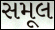
સમૂલ